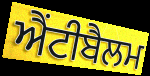
ਐਂਟੀਬੈਲਮ